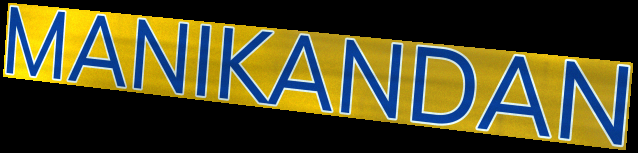
MANIKANDAN